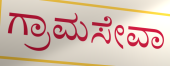
ಗ್ರಾಮಸೇವಾ